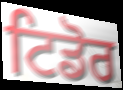
ਟਿਡੋਰ